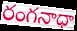
రంగనాధా